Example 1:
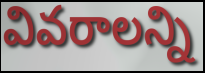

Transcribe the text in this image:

వివరాలన్ని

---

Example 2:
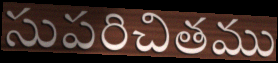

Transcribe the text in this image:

సుపరిచితము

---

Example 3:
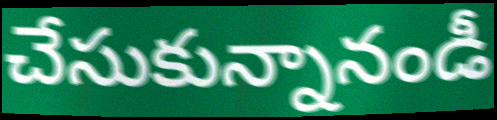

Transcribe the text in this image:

చేసుకున్నానండీ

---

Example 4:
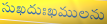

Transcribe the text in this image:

సుఖదుఃఖములను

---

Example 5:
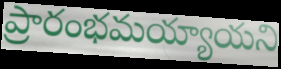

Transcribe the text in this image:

ప్రారంభమయ్యాయని